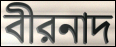
বীরনাদ